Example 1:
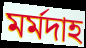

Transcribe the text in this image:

মর্মদাহ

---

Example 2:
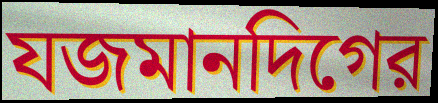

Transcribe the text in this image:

যজমানদিগের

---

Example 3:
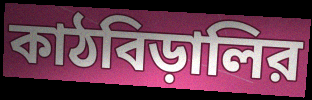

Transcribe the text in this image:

কাঠবিড়ালির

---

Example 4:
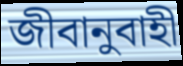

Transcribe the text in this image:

জীবানুবাহী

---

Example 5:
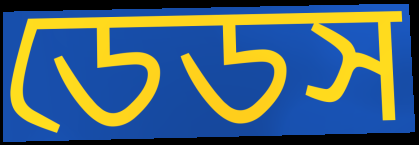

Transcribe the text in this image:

ডেডস